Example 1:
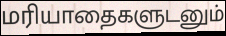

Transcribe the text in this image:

மரியாதைகளுடனும்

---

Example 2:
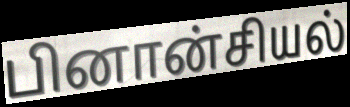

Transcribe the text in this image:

பினான்சியல்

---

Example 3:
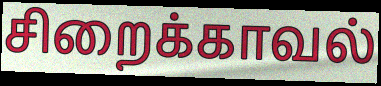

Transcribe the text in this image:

சிறைக்காவல்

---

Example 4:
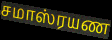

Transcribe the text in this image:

சமாஸ்ரயண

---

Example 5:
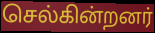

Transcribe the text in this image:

செல்கின்றனர்